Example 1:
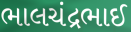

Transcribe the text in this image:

ભાલચંદ્રભાઈ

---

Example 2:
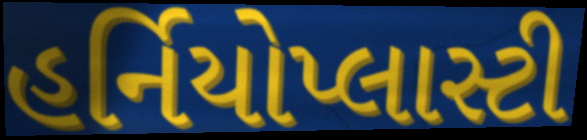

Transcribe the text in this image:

હર્નિયોપ્લાસ્ટી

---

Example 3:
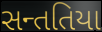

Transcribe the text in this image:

સન્તતિયા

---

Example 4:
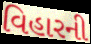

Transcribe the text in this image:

વિહારની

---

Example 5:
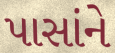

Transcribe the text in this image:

પાસાંને